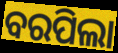
ବରପିଲା